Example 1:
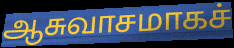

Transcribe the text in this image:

ஆசுவாசமாகச்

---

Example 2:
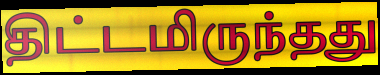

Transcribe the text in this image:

திட்டமிருந்தது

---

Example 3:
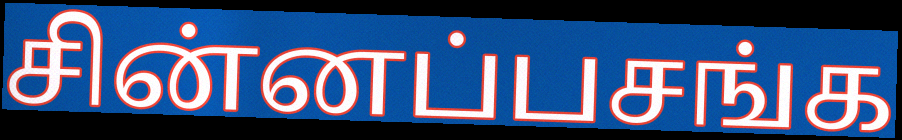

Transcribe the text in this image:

சின்னப்பசங்க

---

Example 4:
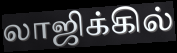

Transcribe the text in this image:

லாஜிக்கில்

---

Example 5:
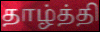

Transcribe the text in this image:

தாழ்த்தி